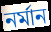
নৰ্মান